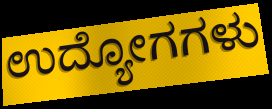
ಉದ್ಯೋಗಗಳು